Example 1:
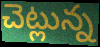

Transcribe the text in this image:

చెట్లున్న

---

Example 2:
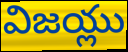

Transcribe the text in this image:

విజయ్లు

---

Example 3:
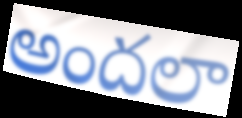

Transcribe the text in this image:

అందలా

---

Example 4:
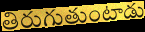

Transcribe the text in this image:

తిరుగుతుంటాడు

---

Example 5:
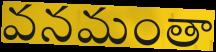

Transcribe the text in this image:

వనమంతా